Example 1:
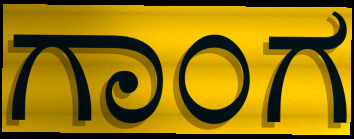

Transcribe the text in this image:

ಗಾಂಗ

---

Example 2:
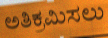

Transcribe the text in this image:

ಅತಿಕ್ರಮಿಸಲು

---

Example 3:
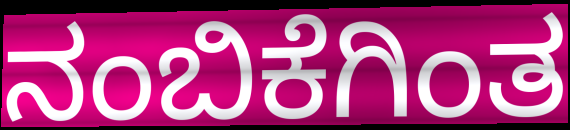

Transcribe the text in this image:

ನಂಬಿಕೆಗಿಂತ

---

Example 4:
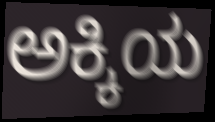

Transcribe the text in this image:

ಅಕ್ಕಿಯ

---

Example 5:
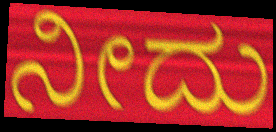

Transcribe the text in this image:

ನೀದು